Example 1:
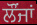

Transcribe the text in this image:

ਲੌਂਜਾਂ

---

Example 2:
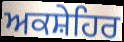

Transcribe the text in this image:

ਅਕਸ਼ੇਹਿਰ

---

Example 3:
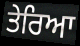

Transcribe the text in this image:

ਤੇਰਿਆ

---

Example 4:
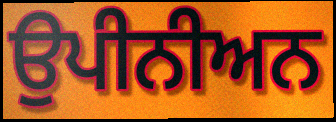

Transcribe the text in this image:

ਉਪੀਨੀਅਨ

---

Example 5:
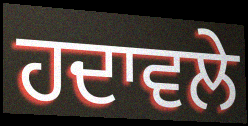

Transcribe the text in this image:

ਹਦਾਵਲੇ